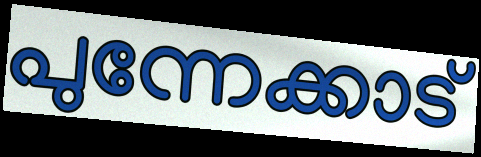
പുന്നേക്കാട്